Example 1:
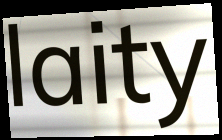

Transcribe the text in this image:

laity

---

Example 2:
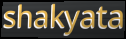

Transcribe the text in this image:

shakyata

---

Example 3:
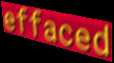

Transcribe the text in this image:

effaced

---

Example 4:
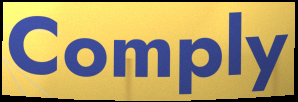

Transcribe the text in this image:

Comply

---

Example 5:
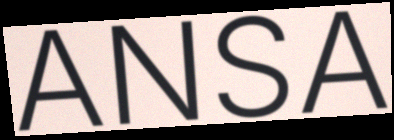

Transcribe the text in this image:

ANSA